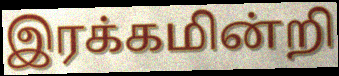
இரக்கமின்றி